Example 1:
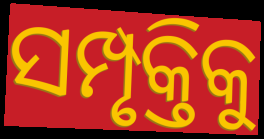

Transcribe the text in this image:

ସମ୍ପୃକ୍ତିକୁ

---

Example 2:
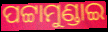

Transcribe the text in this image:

ପଟ୍ଟାମୁଣ୍ଡାଇ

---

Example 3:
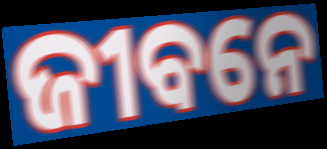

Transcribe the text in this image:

ଜୀବନେ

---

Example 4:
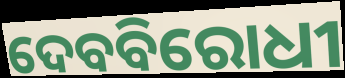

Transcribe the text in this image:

ଦେବବିରୋଧୀ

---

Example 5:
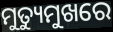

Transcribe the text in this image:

ମୁତ୍ୟୁମୁଖରେ